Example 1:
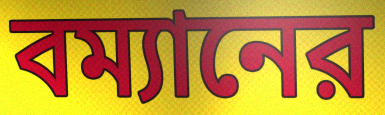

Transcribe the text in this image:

বম্যানের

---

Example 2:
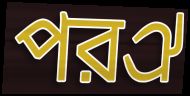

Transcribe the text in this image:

পরঐ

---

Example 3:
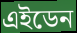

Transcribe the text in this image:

এইডেন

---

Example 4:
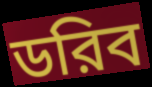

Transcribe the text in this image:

ডরিব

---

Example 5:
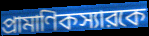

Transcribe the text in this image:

প্রামাণিকস্যারকে